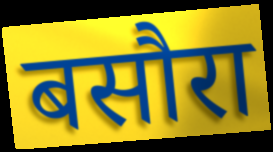
बसौरा